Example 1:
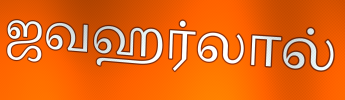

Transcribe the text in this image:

ஜவஹர்லால்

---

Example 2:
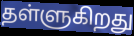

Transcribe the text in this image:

தள்ளுகிறது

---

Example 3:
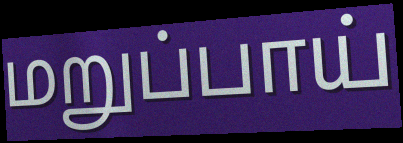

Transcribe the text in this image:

மறுப்பாய்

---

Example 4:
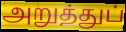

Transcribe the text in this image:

அறுத்துப்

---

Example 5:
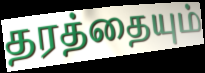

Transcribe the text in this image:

தரத்தையும்